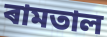
ৰামতাল